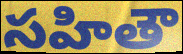
సహితౌ